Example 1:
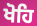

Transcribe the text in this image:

ਖੋਹਿ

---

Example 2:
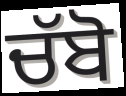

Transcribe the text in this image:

ਚੱਬੋ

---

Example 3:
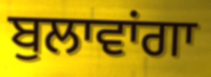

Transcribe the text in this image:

ਬੁਲਾਵਾਂਗਾ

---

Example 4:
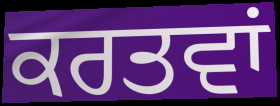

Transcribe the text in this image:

ਕਰਤਵਾਂ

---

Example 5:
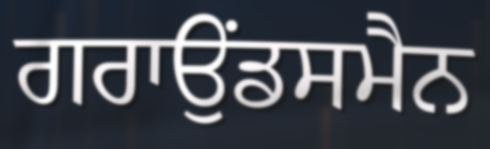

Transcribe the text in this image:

ਗਰਾਉਂਡਸਮੈਨ